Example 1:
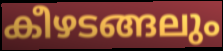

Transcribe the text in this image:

കീഴടങ്ങലും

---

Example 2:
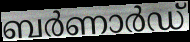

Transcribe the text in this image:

ബർണാർഡ്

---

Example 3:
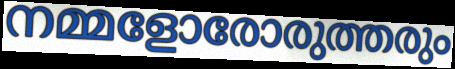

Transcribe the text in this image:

നമ്മളോരോരുത്തരും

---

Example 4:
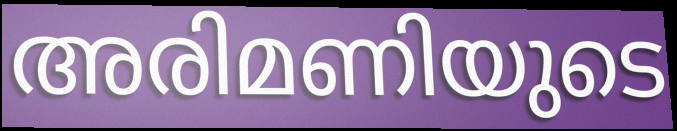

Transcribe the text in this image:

അരിമണിയുടെ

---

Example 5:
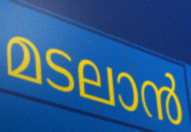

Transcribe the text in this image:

മടലാൻ